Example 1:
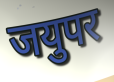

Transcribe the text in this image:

जयुपर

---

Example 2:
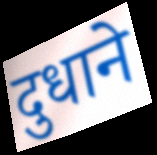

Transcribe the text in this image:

दुधाने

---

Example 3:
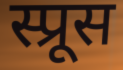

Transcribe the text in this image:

स्प्रूस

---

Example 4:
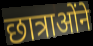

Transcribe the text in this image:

छात्राओंने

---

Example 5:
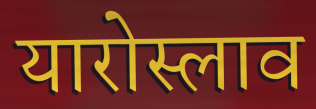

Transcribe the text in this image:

यारोस्लाव